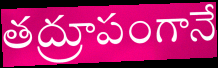
తద్రూపంగానే